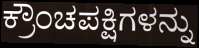
ಕ್ರೌಂಚಪಕ್ಷಿಗಳನ್ನು